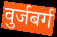
वुर्जबर्ग